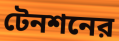
টেনশনের